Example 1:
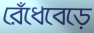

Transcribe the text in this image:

রেঁধেবেড়ে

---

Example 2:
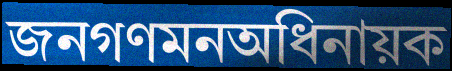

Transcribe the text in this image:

জনগণমনঅধিনায়ক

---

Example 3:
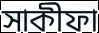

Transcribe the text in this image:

সাকীফা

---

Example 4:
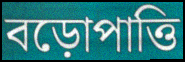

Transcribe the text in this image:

বড়োপাত্তি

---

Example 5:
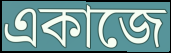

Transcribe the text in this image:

একাজে